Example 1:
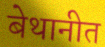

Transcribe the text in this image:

बेथानीत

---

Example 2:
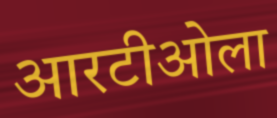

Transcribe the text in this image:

आरटीओला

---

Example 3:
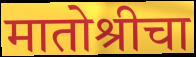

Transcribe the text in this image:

मातोश्रीचा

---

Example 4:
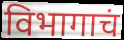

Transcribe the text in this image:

विभागाचं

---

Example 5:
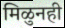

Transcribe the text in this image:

मिळुनही